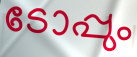
ടോപ്പും